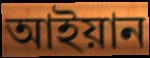
আইয়ান